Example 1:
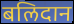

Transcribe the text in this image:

बलिदान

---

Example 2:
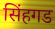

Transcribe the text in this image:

सिंहगड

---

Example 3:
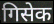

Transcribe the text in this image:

गिसेक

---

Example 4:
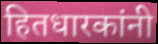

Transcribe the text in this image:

हितधारकांनी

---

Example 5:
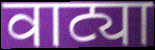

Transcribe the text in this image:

वाट्या